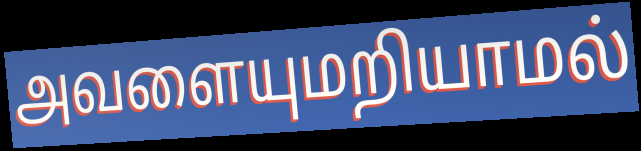
அவளையுமறியாமல்